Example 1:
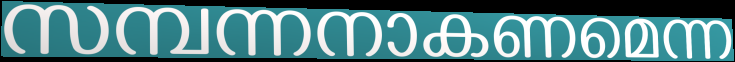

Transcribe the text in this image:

സമ്പന്നനാകണമെന്ന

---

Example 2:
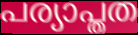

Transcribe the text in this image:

പര്യാപ്തത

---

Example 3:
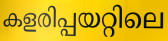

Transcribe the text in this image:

കളരിപ്പയറ്റിലെ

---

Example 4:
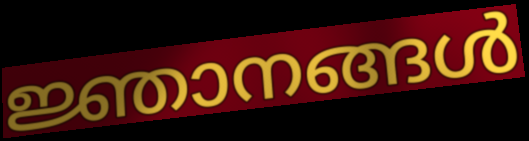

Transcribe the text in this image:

ജ്ഞാനങ്ങൾ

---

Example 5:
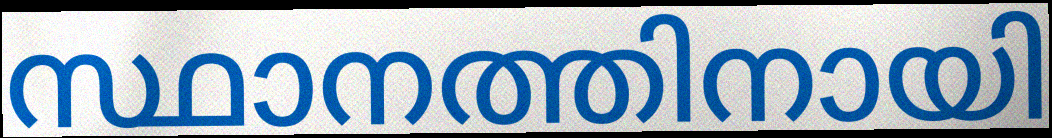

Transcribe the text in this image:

സ്ഥാനത്തിനായി